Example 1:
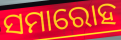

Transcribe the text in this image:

ସମାରୋହ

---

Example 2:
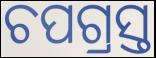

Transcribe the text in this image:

ଚପଗ୍ରସ୍ତ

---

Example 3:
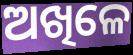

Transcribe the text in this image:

ଅଖିଳେ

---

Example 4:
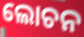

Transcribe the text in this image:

ଲୋଚନ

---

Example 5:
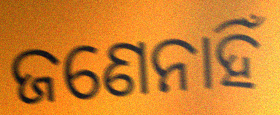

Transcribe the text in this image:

ଜଣେନାହିଁ